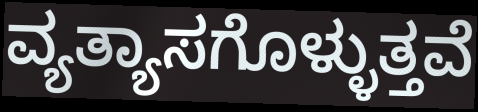
ವ್ಯತ್ಯಾಸಗೊಳ್ಳುತ್ತವೆ